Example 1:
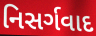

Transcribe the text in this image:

નિસર્ગવાદ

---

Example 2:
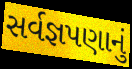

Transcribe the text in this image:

સર્વજ્ઞપણાનું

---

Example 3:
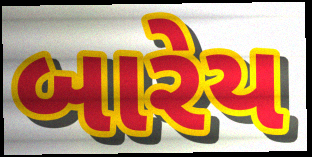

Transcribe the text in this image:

બારેય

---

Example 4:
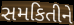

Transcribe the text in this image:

સમકિતીને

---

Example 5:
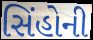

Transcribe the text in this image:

સિંહોની